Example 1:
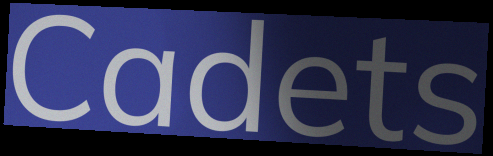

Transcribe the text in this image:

Cadets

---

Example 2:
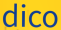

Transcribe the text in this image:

dico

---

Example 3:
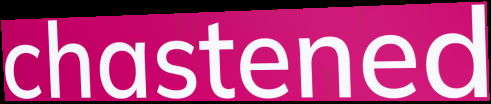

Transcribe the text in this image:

chastened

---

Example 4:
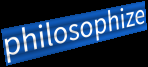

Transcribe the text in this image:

philosophize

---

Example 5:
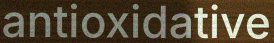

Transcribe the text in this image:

antioxidative